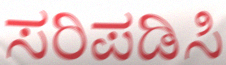
ಸರಿಪಡಿಸಿ